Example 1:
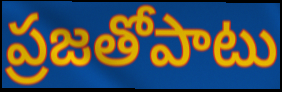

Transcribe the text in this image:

ప్రజతోపాటు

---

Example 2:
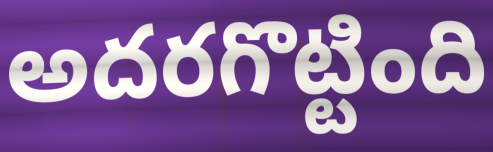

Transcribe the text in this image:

అదరగొట్టింది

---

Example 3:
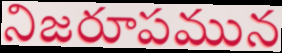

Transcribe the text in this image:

నిజరూపమున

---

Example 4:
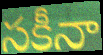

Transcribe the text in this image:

సకీనా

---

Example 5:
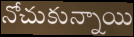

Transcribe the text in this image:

నోచుకున్నాయి